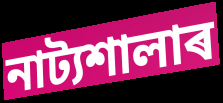
নাট্যশালাৰ